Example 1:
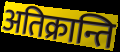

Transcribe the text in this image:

अतिक्रान्ति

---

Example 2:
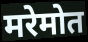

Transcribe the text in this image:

मरेमोत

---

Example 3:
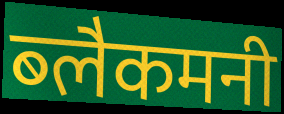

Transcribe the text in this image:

ब्‍लैकमनी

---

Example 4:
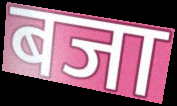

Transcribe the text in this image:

बजा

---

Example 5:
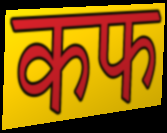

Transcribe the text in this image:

कफ